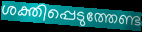
ശക്തിപ്പെടുത്തേണ്ട